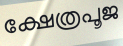
ക്ഷേത്രപൂജ